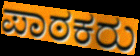
ಪಾಠಕರು